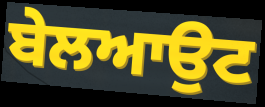
ਬੇਲਆਉਟ